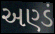
અણ્ડં